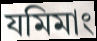
যমিমাং